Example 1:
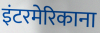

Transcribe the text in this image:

इंटरमेरिकाना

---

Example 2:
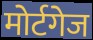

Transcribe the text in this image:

मोर्टगेज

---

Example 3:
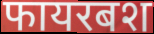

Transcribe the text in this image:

फायरबश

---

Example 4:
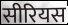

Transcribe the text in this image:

सीरियस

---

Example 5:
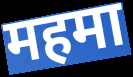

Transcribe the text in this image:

महमा